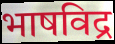
भाषविद्र